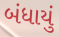
બંધાયું